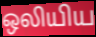
ஒலியிய